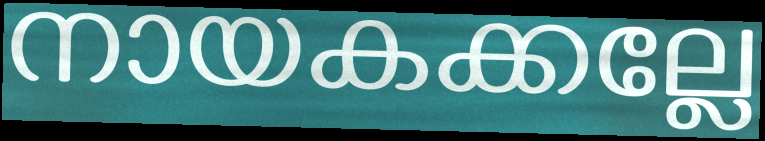
നായകക്കല്ലേ